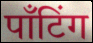
पाँटिंग